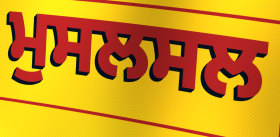
ਮੁਸਲਸਲ